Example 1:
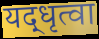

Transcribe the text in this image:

यद्धृत्वा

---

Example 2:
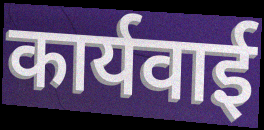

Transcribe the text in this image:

कार्यवाई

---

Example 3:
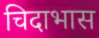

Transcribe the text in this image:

चिदाभास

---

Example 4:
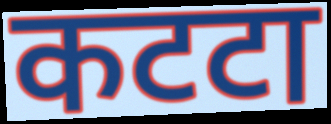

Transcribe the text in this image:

कटटा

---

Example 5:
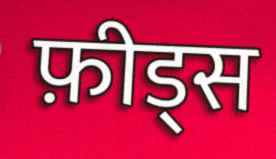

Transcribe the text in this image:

फ़ीड्स